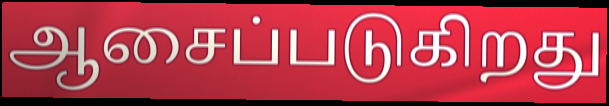
ஆசைப்படுகிறது